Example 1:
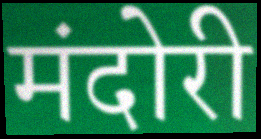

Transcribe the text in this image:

मंदोरी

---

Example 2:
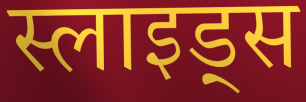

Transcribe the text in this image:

स्लाइड्स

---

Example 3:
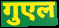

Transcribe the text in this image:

गुएल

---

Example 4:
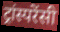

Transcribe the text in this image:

ट्रांस्परेंसी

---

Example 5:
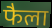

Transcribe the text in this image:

फैला